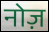
नोज़